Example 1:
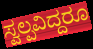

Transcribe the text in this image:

ಸ್ವಲ್ಪವಿದ್ದರೂ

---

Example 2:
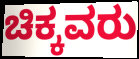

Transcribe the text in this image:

ಚಿಕ್ಕವರು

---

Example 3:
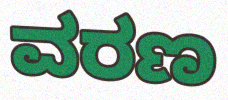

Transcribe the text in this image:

ವರಣ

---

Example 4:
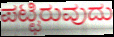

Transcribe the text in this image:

ಪಟ್ಟಿರುವುದು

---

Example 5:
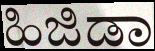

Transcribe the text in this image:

ಹಿಜಿಡಾ